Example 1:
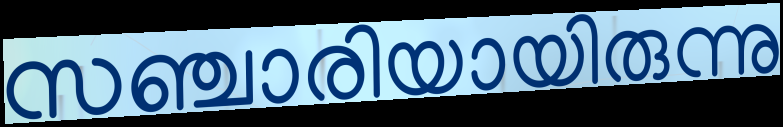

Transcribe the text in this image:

സഞ്ചാരിയായിരുന്നു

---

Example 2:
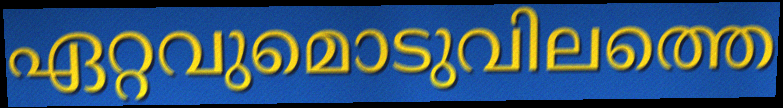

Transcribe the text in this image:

ഏറ്റവുമൊടുവിലത്തെ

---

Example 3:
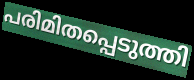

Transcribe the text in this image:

പരിമിതപ്പെടുത്തി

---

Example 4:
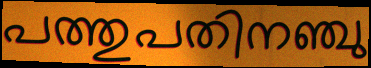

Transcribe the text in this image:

പത്തുപതിനഞ്ചു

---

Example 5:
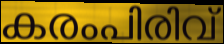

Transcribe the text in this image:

കരംപിരിവ്